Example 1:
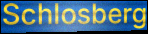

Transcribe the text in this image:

Schlosberg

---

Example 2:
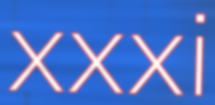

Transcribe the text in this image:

xxxi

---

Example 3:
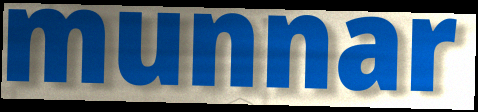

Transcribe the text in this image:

munnar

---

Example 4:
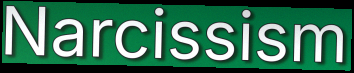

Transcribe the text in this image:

Narcissism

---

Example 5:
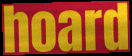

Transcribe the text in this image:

hoard